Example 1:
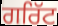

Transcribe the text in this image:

ਗਰਿੱਟ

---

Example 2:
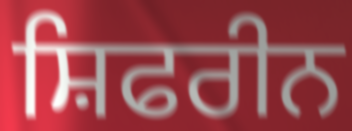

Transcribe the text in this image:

ਸ਼ਿਫਰੀਨ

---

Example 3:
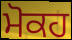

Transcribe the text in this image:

ਮੋਕਹ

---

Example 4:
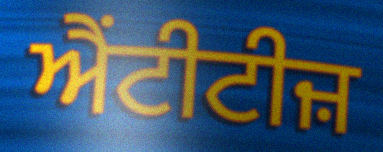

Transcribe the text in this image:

ਐਂਟੀਟੀਜ਼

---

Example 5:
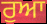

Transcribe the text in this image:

ਰੁਆ